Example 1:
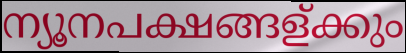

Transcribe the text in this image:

ന്യൂനപക്ഷങ്ങള്ക്കും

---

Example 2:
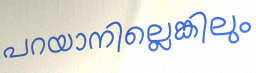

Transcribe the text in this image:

പറയാനില്ലെങ്കിലും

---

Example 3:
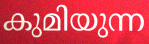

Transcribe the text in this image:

കുമിയുന്ന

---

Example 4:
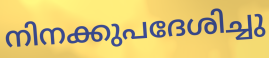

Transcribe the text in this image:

നിനക്കുപദേശിച്ചു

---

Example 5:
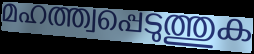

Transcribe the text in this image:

മഹത്ത്വപ്പെടുത്തുക